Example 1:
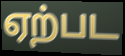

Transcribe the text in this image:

ஏற்பட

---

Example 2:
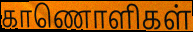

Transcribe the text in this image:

காணொளிகள்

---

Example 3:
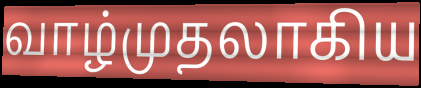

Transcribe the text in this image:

வாழ்முதலாகிய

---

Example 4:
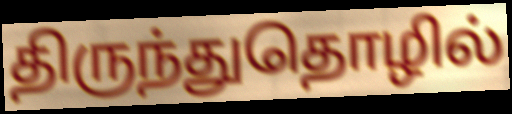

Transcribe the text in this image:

திருந்துதொழில்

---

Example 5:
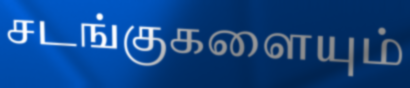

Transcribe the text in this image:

சடங்குகளையும்